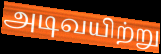
அடிவயிற்று